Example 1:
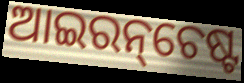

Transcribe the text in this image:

ଆଇରନ୍‌ଚେଷ୍ଟ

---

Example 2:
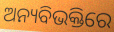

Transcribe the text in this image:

ଅନ୍ୟବିଭକ୍ତିରେ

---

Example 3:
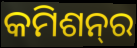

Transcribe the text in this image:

କମିଶନ୍‌ର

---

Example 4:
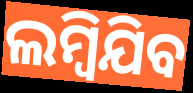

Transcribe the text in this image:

ଲମ୍ୱିଯିବ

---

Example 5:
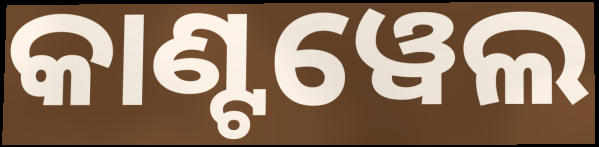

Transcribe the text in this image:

କାଣ୍ଟୱେଲ